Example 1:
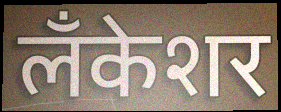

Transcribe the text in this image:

लँकेशर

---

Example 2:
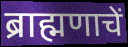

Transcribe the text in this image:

ब्राह्मणाचें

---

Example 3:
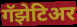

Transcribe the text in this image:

गॅझेटिअर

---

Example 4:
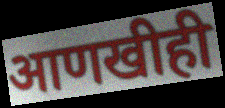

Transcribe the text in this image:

आणखीही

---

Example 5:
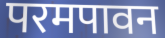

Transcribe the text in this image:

परमपावन